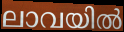
ലാവയിൽ